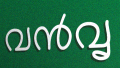
വൻവൃ